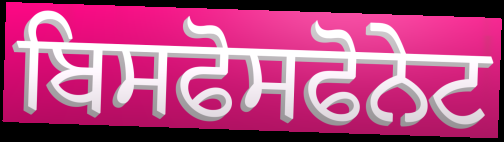
ਬਿਸਫੋਸਫੋਨੇਟ